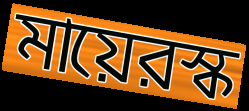
মায়েরস্ক